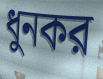
ধুনকর